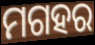
ମଗହର